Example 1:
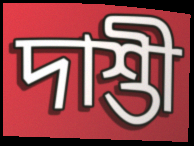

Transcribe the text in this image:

দাশ্তী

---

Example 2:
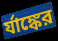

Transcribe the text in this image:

র্যাঙ্কের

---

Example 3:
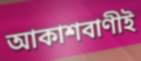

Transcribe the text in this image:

আকাশবাণীই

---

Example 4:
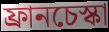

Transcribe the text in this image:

ফ্রানচেস্কা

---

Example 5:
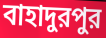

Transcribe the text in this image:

বাহাদুরপুর